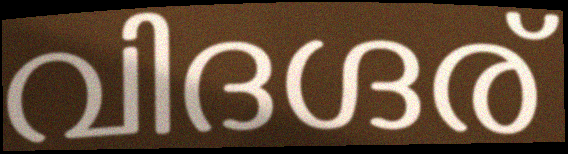
വിദഗ്ദര്